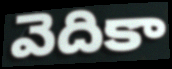
వెదికా